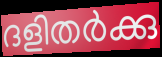
ദളിതർക്കു